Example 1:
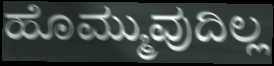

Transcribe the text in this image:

ಹೊಮ್ಮುವುದಿಲ್ಲ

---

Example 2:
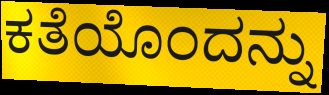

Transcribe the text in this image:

ಕತೆಯೊಂದನ್ನು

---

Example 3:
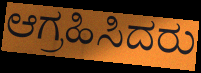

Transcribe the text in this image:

ಆಗ್ರಹಿಸಿದರು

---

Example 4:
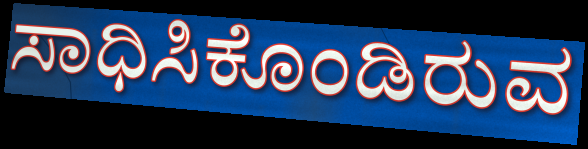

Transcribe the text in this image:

ಸಾಧಿಸಿಕೊಂಡಿರುವ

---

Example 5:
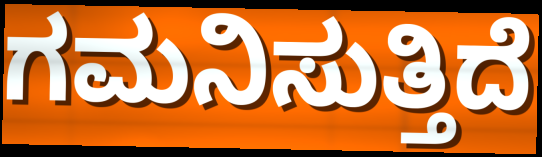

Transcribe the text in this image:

ಗಮನಿಸುತ್ತಿದೆ